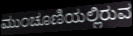
ಮುಂಚೂಣಿಯಲ್ಲಿರುವ